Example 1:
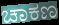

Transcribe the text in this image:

ಚಾಕಣ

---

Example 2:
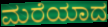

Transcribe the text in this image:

ಮರೆಯಾದ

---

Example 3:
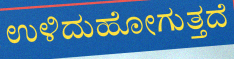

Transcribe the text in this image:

ಉಳಿದುಹೋಗುತ್ತದೆ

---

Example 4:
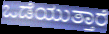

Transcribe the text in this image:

ಒಡೆಯುತ್ತಾರೆ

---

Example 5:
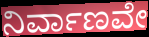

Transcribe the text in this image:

ನಿರ್ವಾಣವೇ